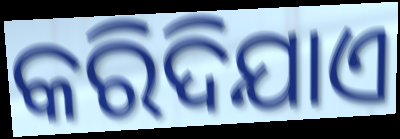
କରିଦିଯାଏ